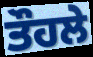
ਤੌਹਲੇ